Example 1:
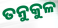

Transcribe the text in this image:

ତନୁକୁଳ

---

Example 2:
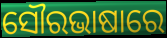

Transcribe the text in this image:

ସୌରଭାଷାରେ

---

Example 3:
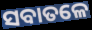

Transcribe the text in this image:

ସବାତଳେ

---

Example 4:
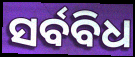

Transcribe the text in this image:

ସର୍ବବିଧ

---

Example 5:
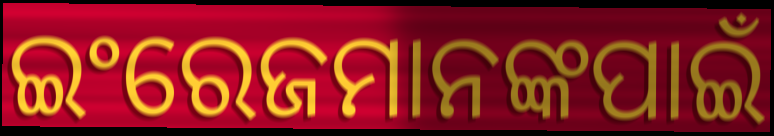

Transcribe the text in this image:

ଇଂରେଜମାନଙ୍କପାଇଁ